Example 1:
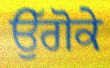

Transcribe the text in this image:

ਉੱਗੋਕੇ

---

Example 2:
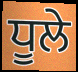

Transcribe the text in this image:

ਧੂਲੇ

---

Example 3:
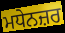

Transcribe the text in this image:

ਮਧੇਨਜ਼ਰ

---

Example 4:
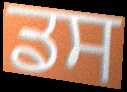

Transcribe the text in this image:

ਡਸ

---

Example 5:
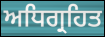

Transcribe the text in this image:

ਅਧਿਗ੍ਰਹਿਤ